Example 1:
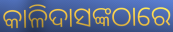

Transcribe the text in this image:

କାଳିଦାସଙ୍କଠାରେ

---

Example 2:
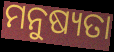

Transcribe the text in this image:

ମନୁଷ୍ୟତା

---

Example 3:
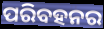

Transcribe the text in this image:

ପରିବହନର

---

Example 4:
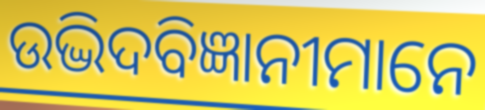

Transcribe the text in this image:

ଉଦ୍ଭିଦବିଜ୍ଞାନୀମାନେ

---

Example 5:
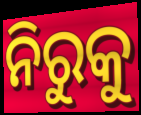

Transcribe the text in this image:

ନିରୁକୁ